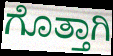
ಗೊತ್ತಾಗಿ